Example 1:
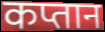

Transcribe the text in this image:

कप्‍तान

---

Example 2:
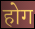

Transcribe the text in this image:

होग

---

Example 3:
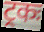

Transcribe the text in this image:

ट्रकः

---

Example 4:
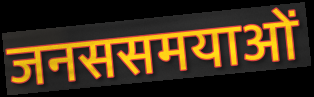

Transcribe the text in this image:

जनससमयाओं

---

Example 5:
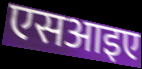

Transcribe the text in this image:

एसआइए